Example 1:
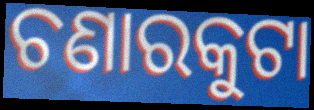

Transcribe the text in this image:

ଚଣାରକୁଟା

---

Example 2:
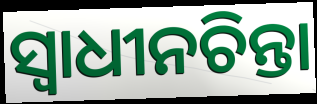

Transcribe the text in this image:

ସ୍ଵାଧୀନଚିନ୍ତା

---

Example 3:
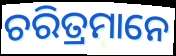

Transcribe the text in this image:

ଚରିତ୍ରମାନେ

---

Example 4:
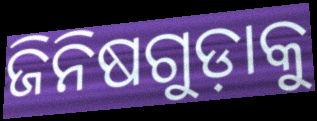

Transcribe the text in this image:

ଜିନିଷଗୁଡ଼ାକୁ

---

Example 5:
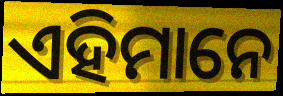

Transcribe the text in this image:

ଏହିମାନେ